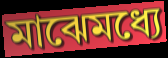
মাঝেমধ্যে